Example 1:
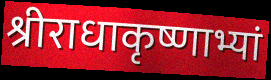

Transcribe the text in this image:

श्रीराधाकृष्णाभ्यां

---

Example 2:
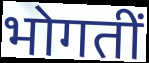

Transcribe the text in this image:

भोगतीं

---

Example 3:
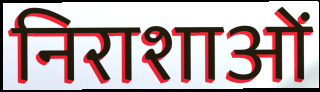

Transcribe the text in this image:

निराशाओं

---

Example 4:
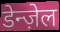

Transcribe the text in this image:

डेन्ज़ेल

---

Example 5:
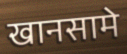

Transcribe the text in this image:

खानसामे